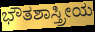
ಭೌತಶಾಸ್ತ್ರೀಯ